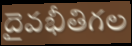
దైవభీతిగల